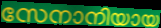
സേനാനിയായ